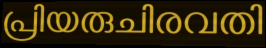
പ്രിയരുചിരവതി